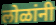
लोळांनी